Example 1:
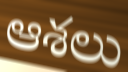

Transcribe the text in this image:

ఆశలు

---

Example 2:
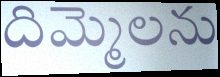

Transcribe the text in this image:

దిమ్మెలను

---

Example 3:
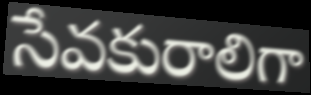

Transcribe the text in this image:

సేవకురాలిగా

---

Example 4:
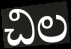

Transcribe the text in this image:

చిల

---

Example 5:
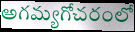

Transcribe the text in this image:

అగమ్యగోచరంలో